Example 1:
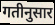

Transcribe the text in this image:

गतीनुसार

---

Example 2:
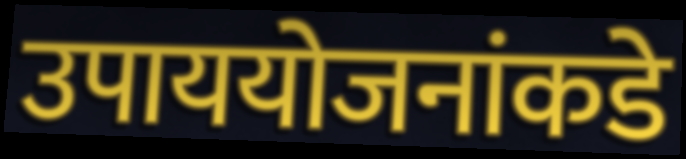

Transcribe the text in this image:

उपाययोजनांकडे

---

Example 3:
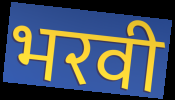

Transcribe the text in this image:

भरवी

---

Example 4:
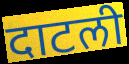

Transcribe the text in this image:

दाटली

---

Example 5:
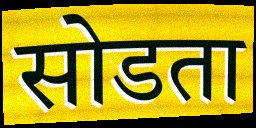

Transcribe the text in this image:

सोडता